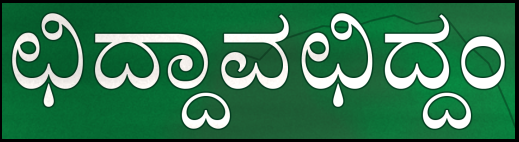
ಛಿದ್ದಾವಛಿದ್ದಂ